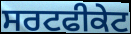
ਸਰਟਫੀਕੇਟ